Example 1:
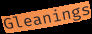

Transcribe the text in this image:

Gleanings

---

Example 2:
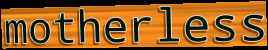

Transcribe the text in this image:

motherless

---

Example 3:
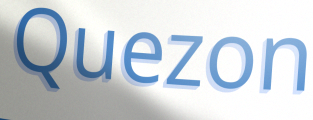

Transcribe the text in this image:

Quezon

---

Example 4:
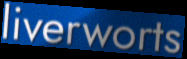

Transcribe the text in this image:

liverworts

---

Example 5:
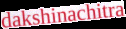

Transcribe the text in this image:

dakshinachitra